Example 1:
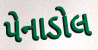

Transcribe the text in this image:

પેનાડોલ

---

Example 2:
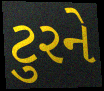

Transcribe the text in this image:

ટુરને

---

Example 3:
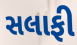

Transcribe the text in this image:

સલાફી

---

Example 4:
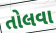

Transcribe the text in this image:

તોલવા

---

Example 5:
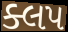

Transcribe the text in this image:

ક્લપ